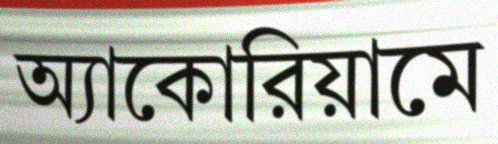
অ্যাকোরিয়ামে